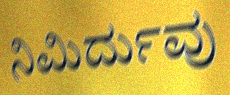
ನಿಮಿರ್ದುವು